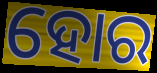
ହୋର